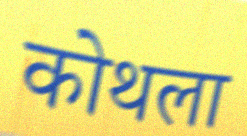
कोथला